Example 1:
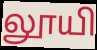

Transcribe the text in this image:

லூயி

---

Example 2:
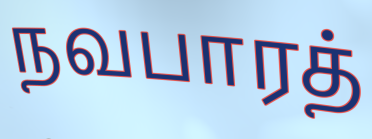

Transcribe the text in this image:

நவபாரத்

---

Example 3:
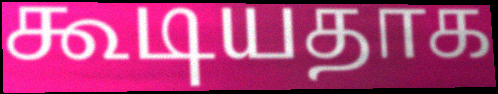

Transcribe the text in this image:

கூடியதாக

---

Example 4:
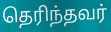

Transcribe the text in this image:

தெரிந்தவர்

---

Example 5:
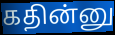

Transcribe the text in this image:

கதின்னு